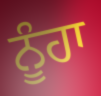
ਨੂੰਹਾ